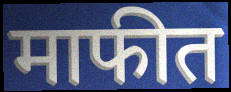
माफीत